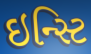
ઇન્સ્ટિ